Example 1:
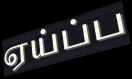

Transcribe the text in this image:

ஏய்ப்ப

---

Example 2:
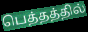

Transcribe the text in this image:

பெத்தத்தில்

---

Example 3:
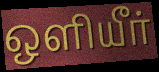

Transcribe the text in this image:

ஒளியீர்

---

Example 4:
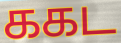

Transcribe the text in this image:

ககட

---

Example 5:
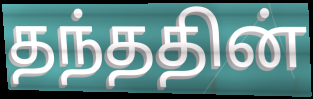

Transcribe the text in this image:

தந்ததின்